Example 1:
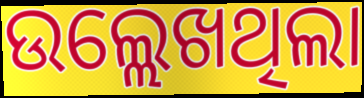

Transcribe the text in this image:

ଉଲ୍ଲେଖଥିଲା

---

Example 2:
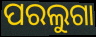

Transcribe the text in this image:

ପରଲୁଗା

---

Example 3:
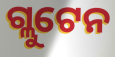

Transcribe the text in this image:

ଗ୍ଲୁଟେନ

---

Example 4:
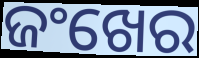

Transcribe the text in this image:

ଜଂଖେର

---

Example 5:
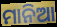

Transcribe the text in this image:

ମାନିଆ